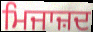
ਮਿਜਾਜ਼ਦ